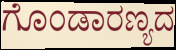
ಗೊಂಡಾರಣ್ಯದ